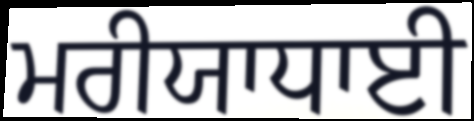
ਮਰੀਯਾਧਾਈ